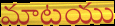
మాటయు